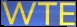
WTE